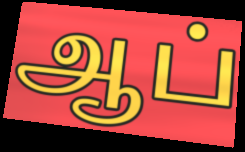
ஆப்